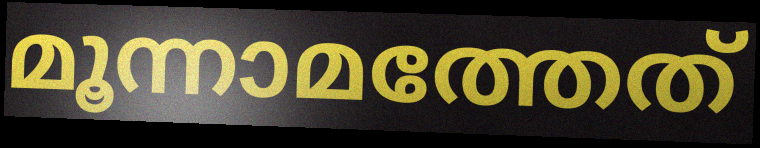
മൂന്നാമത്തേത്